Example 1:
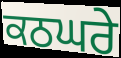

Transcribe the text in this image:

ਕਠਘਰੇ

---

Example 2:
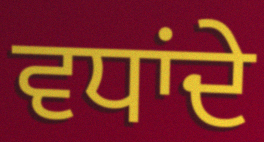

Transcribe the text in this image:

ਵਧਾਂਦੇ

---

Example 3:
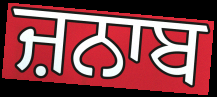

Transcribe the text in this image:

ਜ਼ਨਾਬ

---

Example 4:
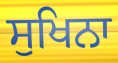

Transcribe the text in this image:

ਸੁਖਿਨਾ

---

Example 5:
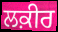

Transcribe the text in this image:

ਲਕ਼ੀਰ